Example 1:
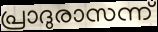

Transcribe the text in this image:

പ്രാദുരാസന്ന്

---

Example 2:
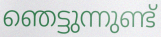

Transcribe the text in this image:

ഞെട്ടുന്നുണ്ട്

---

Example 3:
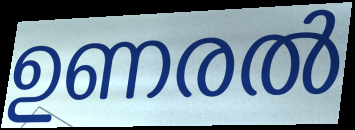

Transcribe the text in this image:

ഉണരൽ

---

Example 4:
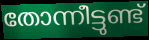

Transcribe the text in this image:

തോന്നീട്ടുണ്ട്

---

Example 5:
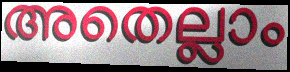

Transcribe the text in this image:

അതെല്ലാം